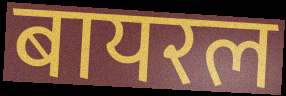
बायरल